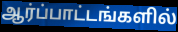
ஆர்ப்பாட்டங்களில்